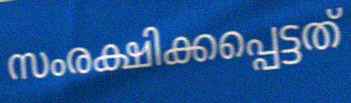
സംരക്ഷിക്കപ്പെട്ടത്